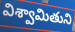
విశ్వామితుని